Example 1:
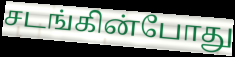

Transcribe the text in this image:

சடங்கின்போது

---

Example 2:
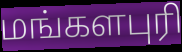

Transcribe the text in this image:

மங்களபுரி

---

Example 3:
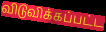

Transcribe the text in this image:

விடுவிக்கப்பட்ட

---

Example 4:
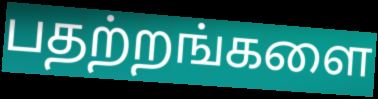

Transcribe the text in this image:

பதற்றங்களை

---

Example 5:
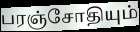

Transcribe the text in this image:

பரஞ்சோதியும்